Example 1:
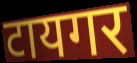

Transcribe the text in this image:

टायगर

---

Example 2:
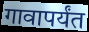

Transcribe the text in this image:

गावापर्यंत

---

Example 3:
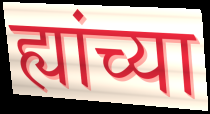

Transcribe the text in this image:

ह्यांच्या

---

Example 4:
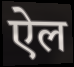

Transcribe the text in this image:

ऐल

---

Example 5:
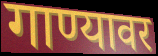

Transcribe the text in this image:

गाण्यावर